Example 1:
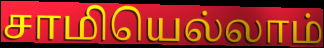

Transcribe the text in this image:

சாமியெல்லாம்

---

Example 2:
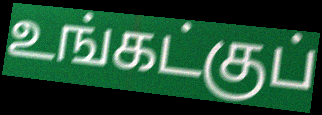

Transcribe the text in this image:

உங்கட்குப்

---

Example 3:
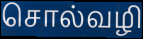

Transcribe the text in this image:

சொல்வழி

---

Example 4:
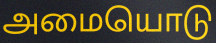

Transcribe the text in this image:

அமையொடு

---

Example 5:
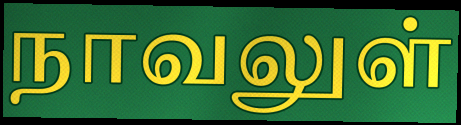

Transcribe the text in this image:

நாவலுள்